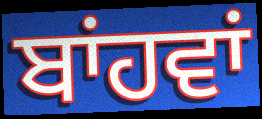
ਬਾਂਹਵਾਂ